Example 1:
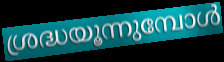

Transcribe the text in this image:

ശ്രദ്ധയൂന്നുമ്പോൾ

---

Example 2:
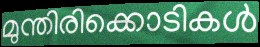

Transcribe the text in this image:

മുന്തിരിക്കൊടികൾ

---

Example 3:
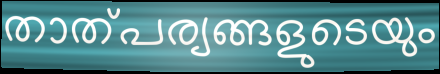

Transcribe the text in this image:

താത്പര്യങ്ങളുടെയും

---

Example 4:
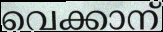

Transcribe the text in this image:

വെക്കാന്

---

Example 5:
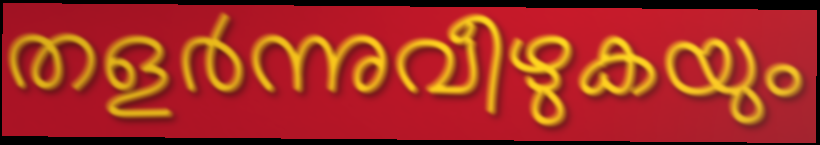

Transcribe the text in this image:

തളർന്നുവീഴുകയും